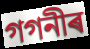
গগনীৰ